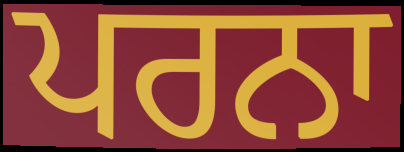
ਪਰਨਾ